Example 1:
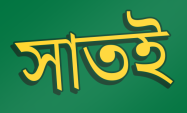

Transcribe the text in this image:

সাতই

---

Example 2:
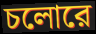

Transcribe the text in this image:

চলোরে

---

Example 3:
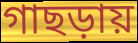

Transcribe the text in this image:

গাছড়ায়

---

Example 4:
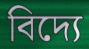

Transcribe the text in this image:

বিদ্যে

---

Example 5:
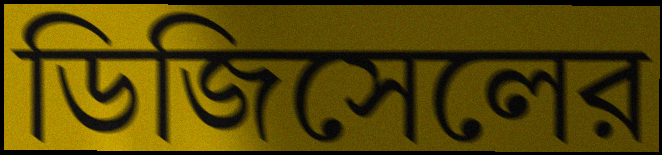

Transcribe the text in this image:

ডিজিসেলের